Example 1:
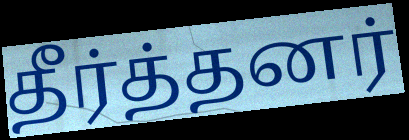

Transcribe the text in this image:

தீர்த்தனர்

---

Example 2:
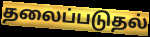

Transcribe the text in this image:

தலைப்படுதல்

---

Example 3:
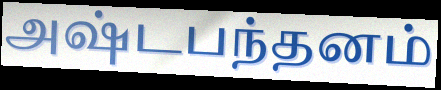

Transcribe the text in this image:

அஷ்டபந்தனம்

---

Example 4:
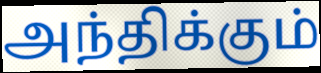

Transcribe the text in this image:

அந்திக்கும்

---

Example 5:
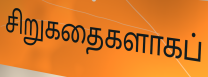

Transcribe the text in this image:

சிறுகதைகளாகப்